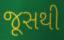
જૂસથી